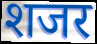
शजर